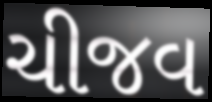
ચીજવ